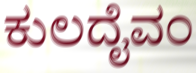
ಕುಲದೈವಂ